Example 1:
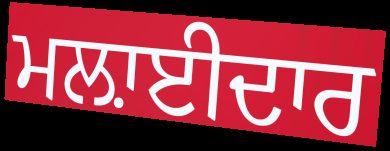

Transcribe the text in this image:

ਮਲ਼ਾਈਦਾਰ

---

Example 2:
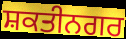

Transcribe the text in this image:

ਸ਼ਕਤੀਨਗਰ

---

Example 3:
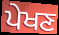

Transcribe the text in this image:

ਪੇਖਣ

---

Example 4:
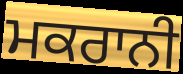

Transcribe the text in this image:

ਮਕਰਾਨੀ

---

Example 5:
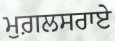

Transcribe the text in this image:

ਮੁਗ਼ਲਸਰਾਏ